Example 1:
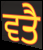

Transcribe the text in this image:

ਵਤੈ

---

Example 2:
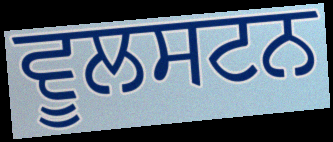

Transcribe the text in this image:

ਵੂਲਸਟਨ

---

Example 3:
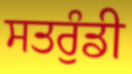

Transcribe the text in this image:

ਸਤਰੁੰਡੀ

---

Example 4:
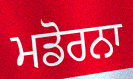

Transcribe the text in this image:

ਮਡੋਰਨਾ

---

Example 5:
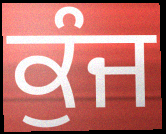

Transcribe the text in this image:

ਕੁੰਜ